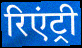
रिएंट्री